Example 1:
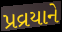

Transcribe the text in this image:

પ્રવ્રયાને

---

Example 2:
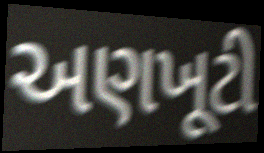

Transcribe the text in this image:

અણખૂટી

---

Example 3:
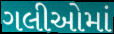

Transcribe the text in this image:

ગલીઓમાં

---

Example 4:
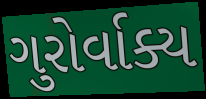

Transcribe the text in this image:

ગુરોર્વાક્ય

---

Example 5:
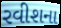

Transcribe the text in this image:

રવીશના